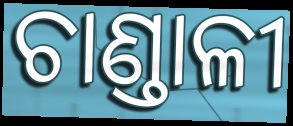
ଚାଣ୍ଡାଳୀ